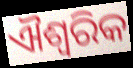
ଐଶ୍ୱରିକ